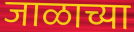
जाळाच्या